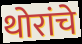
थोरांचे